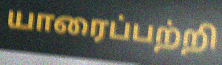
யாரைப்பற்றி